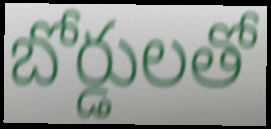
బోర్డులతో